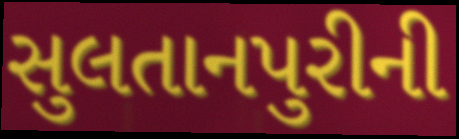
સુલતાનપુરીની